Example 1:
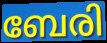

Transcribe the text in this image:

ബേരി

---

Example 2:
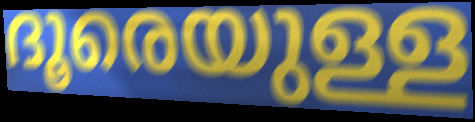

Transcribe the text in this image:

ദൂരെയുള്ള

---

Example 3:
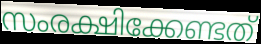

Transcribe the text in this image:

സംരക്ഷിക്കേണ്ടത്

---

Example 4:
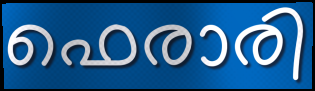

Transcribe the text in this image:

ഫെരാരി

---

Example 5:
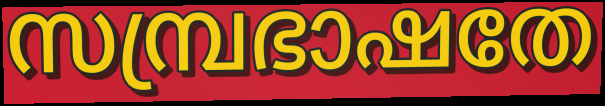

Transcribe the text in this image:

സമ്പ്രഭാഷതേ